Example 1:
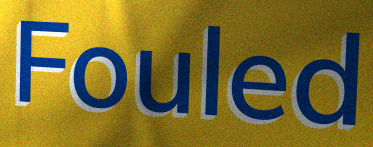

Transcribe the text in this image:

Fouled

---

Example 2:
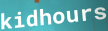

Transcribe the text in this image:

kidhours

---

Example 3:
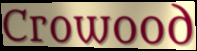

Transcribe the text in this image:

Crowood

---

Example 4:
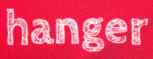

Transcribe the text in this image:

hanger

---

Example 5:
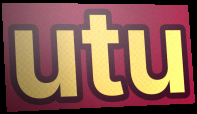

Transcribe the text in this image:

utu